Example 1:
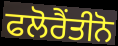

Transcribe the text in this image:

ਫਲੋਰੈਂਤੀਨੋ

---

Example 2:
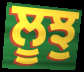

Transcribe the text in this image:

ਲੂਝੁ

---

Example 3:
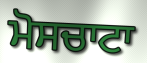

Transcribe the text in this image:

ਮੋਸਚਾਟਾ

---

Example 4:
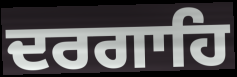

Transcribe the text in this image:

ਦਰਗਾਹਿ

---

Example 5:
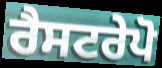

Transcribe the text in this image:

ਰੈਸਟਰੇਪੋ